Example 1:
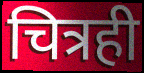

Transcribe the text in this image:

चित्रही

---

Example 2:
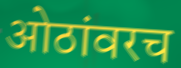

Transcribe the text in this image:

ओठांवरच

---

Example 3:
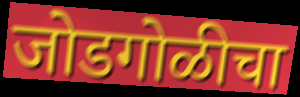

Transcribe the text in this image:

जोडगोळीचा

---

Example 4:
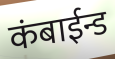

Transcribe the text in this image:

कंबाईन्ड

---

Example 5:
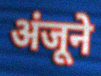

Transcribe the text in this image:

अंजूने